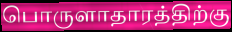
பொருளாதாரத்திற்கு